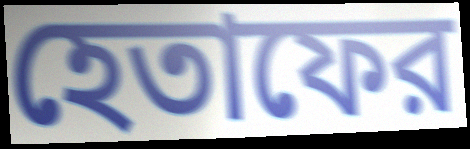
হেতাফের